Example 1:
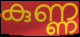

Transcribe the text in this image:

കുണ്ണ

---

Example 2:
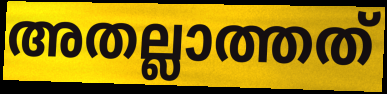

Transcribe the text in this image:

അതല്ലാത്തത്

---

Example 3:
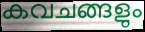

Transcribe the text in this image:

കവചങ്ങളും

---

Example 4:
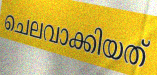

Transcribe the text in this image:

ചെലവാക്കിയത്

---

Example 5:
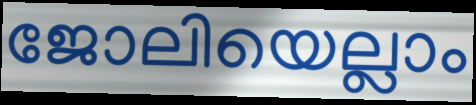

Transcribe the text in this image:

ജോലിയെല്ലാം